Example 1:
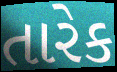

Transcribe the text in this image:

તારેક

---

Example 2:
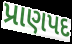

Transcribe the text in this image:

પ્રાણપદ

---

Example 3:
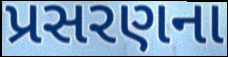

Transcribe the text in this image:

પ્રસરણના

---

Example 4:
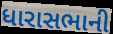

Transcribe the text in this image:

ધારાસભાની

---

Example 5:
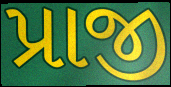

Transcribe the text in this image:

પ્રાજી